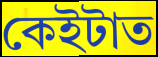
কেইটাত